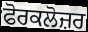
ਫੋਰਕਲੋਜ਼ਰ